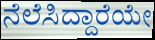
ನೆಲೆಸಿದ್ದಾರೆಯೇ